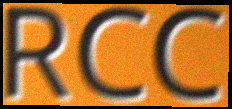
RCC